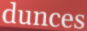
dunces